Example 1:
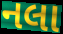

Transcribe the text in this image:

નલા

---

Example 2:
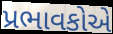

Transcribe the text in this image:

પ્રભાવકોએ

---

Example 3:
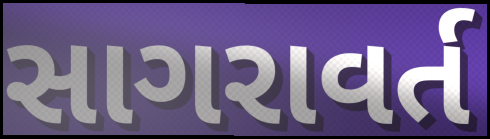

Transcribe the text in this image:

સાગરાવર્ત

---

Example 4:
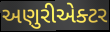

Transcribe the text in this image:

અણુરીએક્ટર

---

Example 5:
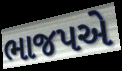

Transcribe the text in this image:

ભાજપએ